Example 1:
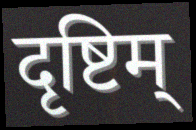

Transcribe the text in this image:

दृष्टिम्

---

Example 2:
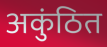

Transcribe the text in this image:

अकुंठित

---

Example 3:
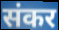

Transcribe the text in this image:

संकर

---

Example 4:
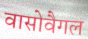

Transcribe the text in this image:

वासोवैगल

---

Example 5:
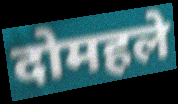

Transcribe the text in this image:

दोमहले